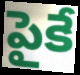
పైకే